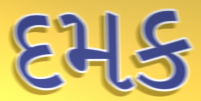
દમક